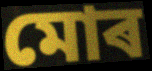
মোৰ